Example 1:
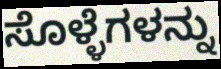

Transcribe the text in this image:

ಸೊಳ್ಳೆಗಳನ್ನು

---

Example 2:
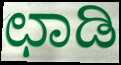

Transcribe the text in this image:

ಛಾಡಿ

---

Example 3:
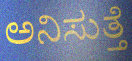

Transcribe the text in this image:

ಅನಿಸುತ್ತೆ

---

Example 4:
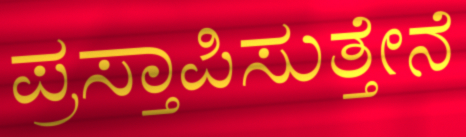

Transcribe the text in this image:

ಪ್ರಸ್ತಾಪಿಸುತ್ತೇನೆ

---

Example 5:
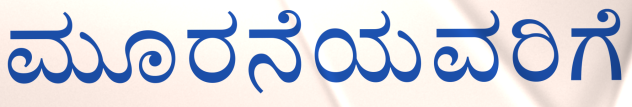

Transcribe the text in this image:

ಮೂರನೆಯವರಿಗೆ